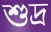
শুদ্র